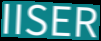
IISER